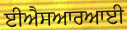
ਈਐਸਆਰਆਈ